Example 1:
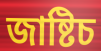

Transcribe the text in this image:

জাষ্টিচ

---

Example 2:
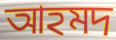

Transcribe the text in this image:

আহমদ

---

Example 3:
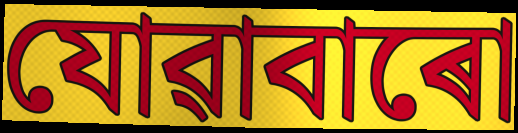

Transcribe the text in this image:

যোৱাবাৰো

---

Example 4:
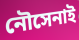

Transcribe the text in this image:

নৌসেনাই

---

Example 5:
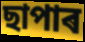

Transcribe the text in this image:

ছাপাৰ